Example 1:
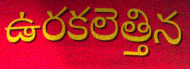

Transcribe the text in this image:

ఉరకలెత్తిన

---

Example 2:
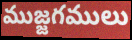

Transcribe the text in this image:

ముజ్జగములు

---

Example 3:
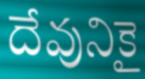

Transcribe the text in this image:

దేవునికై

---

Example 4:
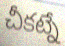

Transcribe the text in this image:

చీకట్నే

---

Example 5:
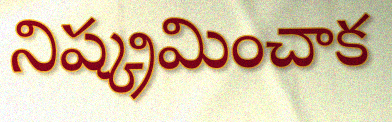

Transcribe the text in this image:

నిష్క్రమించాక